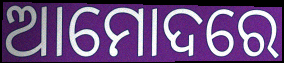
ଆମୋଦରେ